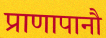
प्राणापानौ